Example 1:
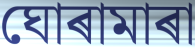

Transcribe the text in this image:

ঘোৰামাৰা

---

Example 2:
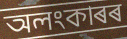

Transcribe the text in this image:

অলংকাৰৰ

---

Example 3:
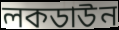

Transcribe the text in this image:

লকডাউন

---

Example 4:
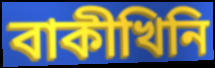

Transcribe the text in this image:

বাকীখিনি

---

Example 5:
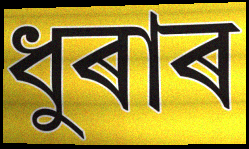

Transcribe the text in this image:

ধুৰাৰ